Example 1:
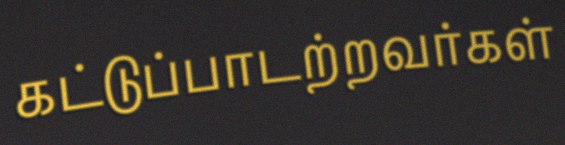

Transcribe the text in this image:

கட்டுப்பாடற்றவர்கள்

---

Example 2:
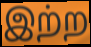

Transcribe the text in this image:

இற்ற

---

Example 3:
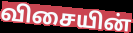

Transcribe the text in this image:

விசையின்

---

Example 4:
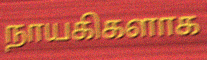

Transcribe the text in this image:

நாயகிகளாக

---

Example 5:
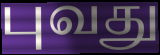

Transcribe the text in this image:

புவது